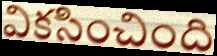
వికసించింది